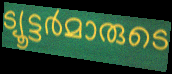
ട്യൂട്ടർമാരുടെ